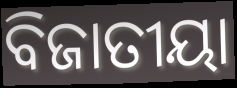
ବିଜାତୀୟା